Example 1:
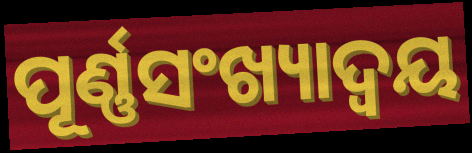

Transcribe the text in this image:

ପୂର୍ଣ୍ଣସଂଖ୍ୟାଦ୍ଵୟ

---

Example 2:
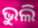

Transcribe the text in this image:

ଭୁଲି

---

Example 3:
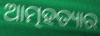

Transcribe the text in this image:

ଆତ୍ମହତ୍ୟାର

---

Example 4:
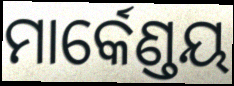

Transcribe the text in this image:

ମାର୍କେଣ୍ଡୟ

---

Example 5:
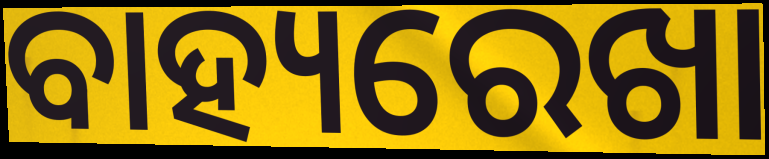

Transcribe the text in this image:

ବାହ୍ୟରେଖା